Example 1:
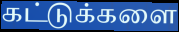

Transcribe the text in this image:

கட்டுக்களை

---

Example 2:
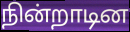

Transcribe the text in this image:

நின்றாடின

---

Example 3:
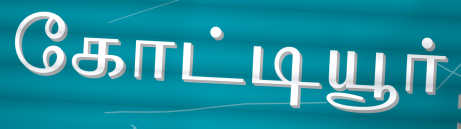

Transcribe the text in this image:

கோட்டியூர்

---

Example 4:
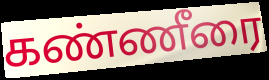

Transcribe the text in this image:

கண்ணீரை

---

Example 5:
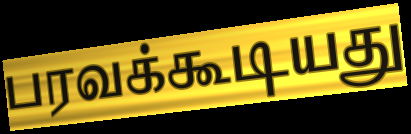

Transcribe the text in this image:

பரவக்கூடியது